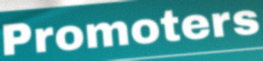
Promoters